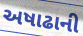
અષાઢાની